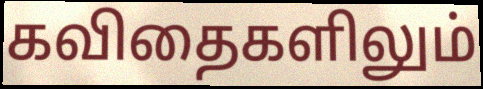
கவிதைகளிலும்